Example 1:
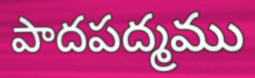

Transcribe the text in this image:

పాదపద్మము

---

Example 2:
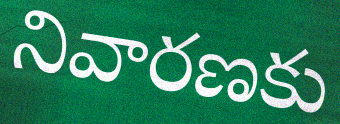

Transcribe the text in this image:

నివారణకు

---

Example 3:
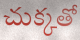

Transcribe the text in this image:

చుక్కతో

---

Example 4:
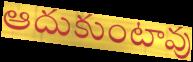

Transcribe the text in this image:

ఆదుకుంటావు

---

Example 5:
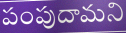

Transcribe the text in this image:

పంపుదామని